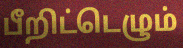
பீறிட்டெழும்